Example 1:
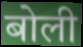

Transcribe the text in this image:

बोली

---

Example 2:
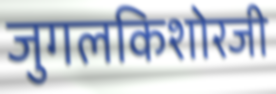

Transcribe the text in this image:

जुगलकिशोरजी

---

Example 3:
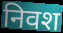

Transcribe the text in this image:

निवश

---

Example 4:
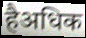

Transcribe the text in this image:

हैअधिक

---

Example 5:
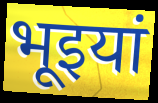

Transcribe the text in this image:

भूइयां